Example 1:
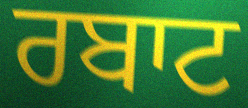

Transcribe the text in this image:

ਰਬਾਟ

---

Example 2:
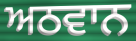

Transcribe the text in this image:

ਅਠਵਾਨ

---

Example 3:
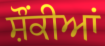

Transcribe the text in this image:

ਸ਼ੌਂਕੀਆਂ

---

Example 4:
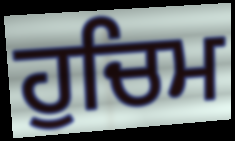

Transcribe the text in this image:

ਹੁਚਿਮ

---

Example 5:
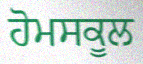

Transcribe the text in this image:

ਹੋਮਸਕੂਲ